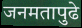
जनमतापुढे